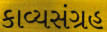
કાવ્યસંગ્રહ